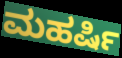
ಮಹರ್ಷಿ